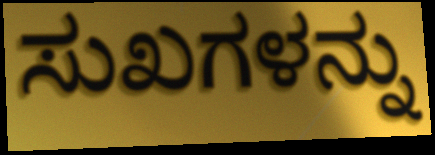
ಸುಖಗಳನ್ನು